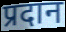
प्रदान